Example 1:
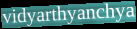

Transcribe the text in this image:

vidyarthyanchya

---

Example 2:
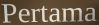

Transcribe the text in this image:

Pertama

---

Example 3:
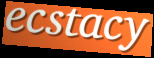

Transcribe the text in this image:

ecstacy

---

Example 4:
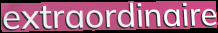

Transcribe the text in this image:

extraordinaire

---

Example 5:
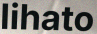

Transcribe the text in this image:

lihato